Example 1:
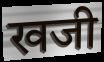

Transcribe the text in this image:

खजी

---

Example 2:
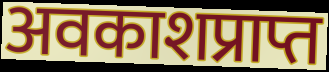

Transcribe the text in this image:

अवकाशप्राप्त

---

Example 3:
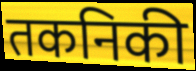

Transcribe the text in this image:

तकनिकी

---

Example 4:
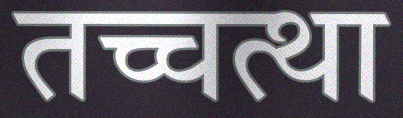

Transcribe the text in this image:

तच्चत्था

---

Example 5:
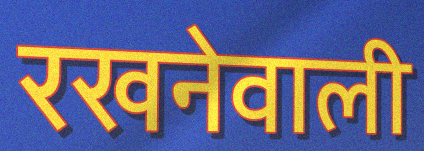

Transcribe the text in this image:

रखनेवाली